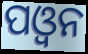
ପଓ୍ବନ